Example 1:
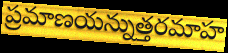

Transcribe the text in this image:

ప్రమాణయన్నుత్తరమాహ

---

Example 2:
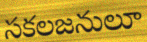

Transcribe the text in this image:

సకలజనులూ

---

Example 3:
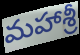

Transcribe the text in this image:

మహాశ్రీ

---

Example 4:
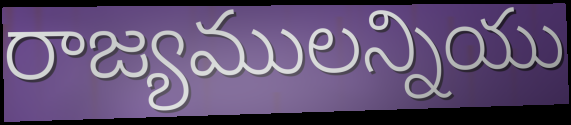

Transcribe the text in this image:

రాజ్యములన్నియు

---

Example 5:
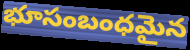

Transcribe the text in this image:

భూసంబంధమైన